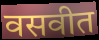
वसवीत